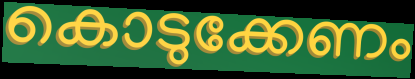
കൊടുക്കേണം